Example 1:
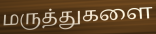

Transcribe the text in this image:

மருத்துகளை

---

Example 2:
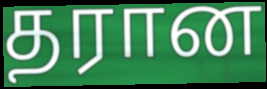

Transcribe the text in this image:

தரான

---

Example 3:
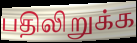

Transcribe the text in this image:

பதிலிறுக்க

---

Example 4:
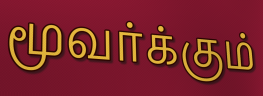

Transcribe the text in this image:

மூவர்க்கும்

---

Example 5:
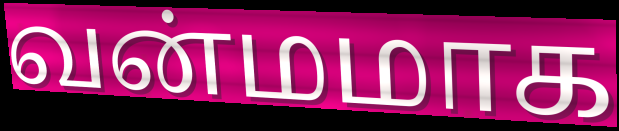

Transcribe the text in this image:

வன்மமாக